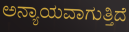
ಅನ್ಯಾಯವಾಗುತ್ತಿದೆ